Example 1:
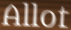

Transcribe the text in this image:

Allot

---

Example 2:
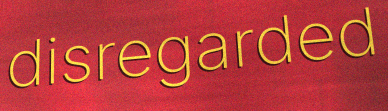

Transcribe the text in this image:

disregarded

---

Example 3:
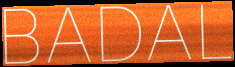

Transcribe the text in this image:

BADAL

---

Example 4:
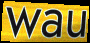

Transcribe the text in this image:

wau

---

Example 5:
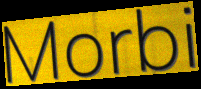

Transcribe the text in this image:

Morbi